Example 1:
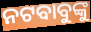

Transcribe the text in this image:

ନଟବାବୁଙ୍କୁ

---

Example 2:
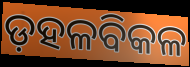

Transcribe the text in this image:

ଡ଼ହଳବିକଳ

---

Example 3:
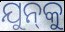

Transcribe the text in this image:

ଯୁନ୍‍କୁ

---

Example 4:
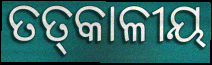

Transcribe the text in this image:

ତତ୍‌କାଳୀୟ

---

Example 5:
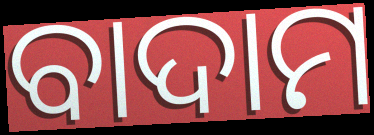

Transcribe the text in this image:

ବାଦାମ